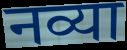
नव्‍या